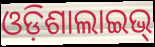
ଓଡ଼ିଶାଲାଇଭ୍